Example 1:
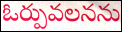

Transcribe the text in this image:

ఓర్పువలనను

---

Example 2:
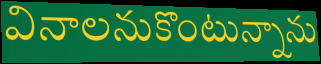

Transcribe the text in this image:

వినాలనుకొంటున్నాను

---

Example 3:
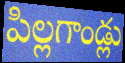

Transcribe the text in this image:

పిల్లగాండ్లు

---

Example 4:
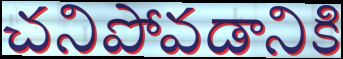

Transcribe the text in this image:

చనిపోవడానికి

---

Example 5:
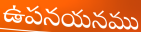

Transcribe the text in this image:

ఉపనయనము